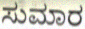
ಸುಮಾರ